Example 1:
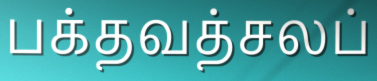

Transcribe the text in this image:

பக்தவத்சலப்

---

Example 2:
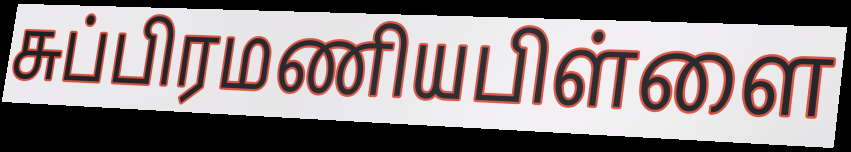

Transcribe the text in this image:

சுப்பிரமணியபிள்ளை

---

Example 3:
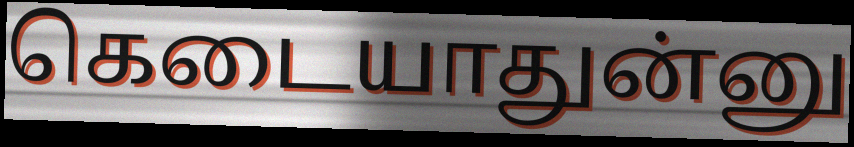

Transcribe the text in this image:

கெடையாதுன்னு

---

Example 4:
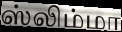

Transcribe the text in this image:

ஸ்லிம்மா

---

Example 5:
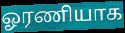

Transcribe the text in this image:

ஓரணியாக